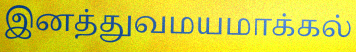
இனத்துவமயமாக்கல்